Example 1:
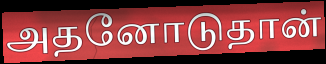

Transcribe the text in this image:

அதனோடுதான்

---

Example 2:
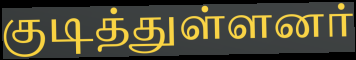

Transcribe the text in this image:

குடித்துள்ளனர்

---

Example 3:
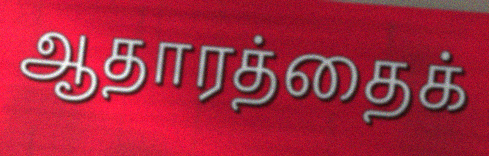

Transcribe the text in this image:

ஆதாரத்தைக்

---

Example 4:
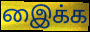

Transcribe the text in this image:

இைக்க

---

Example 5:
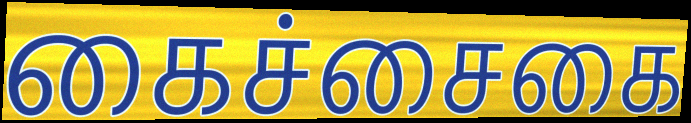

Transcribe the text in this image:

கைச்சைகை